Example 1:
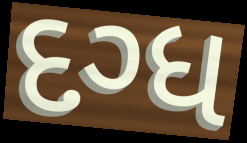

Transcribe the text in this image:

દગ્ધ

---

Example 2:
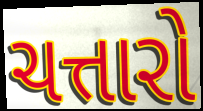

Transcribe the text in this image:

ચત્તારો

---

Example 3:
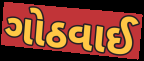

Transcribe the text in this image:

ગોઠવાઈ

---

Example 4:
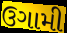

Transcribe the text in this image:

ઉગામી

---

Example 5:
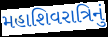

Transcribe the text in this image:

મહાશિવરાત્રિનું